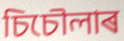
চিচৌলাৰ